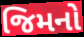
જિમનો